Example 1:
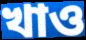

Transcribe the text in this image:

খাও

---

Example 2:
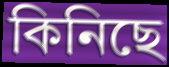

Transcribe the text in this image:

কিনিছে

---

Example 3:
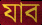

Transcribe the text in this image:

যাব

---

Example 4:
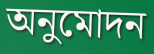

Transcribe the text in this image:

অনুমোদন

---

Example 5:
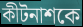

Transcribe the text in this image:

কীটনাশকে